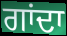
ਗਾਂਦਾ